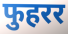
फुहरर